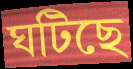
ঘটিছে